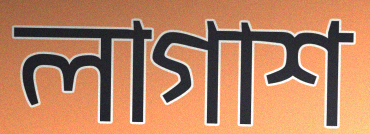
লাগাশ